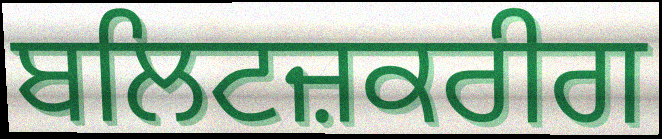
ਬਲਿਟਜ਼ਕਰੀਗ